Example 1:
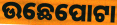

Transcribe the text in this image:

ଉଛେପୋଟା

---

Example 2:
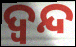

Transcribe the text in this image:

ଦ୍ବନ୍ଦ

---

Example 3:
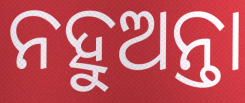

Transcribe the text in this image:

ନହୁଅନ୍ତା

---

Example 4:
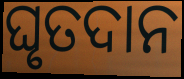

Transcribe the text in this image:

ଘୃତଦାନ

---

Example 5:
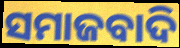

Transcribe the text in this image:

ସମାଜବାଦି